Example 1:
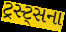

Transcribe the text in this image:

ટ્રસ્ટ્સના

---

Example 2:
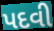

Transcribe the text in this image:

પદવી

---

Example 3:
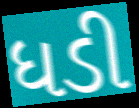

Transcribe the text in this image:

ધડી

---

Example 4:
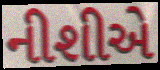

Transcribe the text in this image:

નીશીએ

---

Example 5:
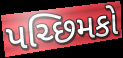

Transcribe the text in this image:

પચ્છિમકો